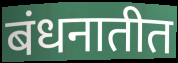
बंधनातीत